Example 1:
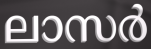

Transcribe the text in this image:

ലാസർ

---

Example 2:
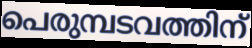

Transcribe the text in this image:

പെരുമ്പടവത്തിന്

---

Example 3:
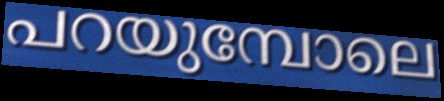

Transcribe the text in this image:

പറയുമ്പോലെ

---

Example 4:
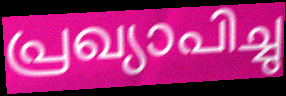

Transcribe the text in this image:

പ്രഖ്യാപിച്ചു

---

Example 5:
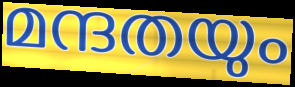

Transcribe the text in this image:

മന്ദതയും